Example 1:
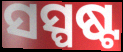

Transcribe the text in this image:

ସସ୍ପଷ୍ଟ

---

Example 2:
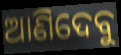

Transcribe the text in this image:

ଆଣିଦେବୁ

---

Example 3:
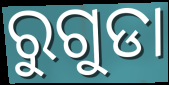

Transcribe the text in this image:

ରୁଗୁଡା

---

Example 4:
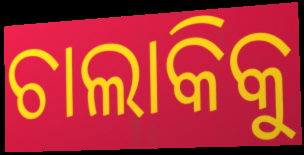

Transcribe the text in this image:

ଚାଲାକିକୁ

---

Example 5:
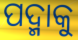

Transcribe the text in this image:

ପଦ୍ମାକୁ